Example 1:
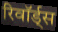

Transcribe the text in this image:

रिवॉर्ड्स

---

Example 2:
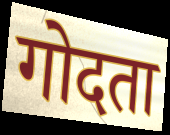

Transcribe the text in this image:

गोदता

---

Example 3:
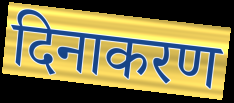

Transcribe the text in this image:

दिनाकरण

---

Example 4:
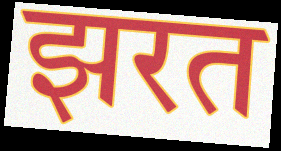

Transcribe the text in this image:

झरत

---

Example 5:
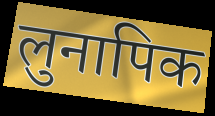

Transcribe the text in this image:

लुनापिक